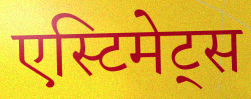
एस्टिमेट्स